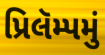
પ્રિલૅમ્પમું